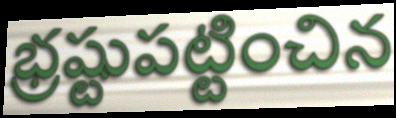
భ్రష్టుపట్టించిన